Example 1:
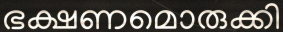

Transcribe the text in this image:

ഭക്ഷണമൊരുക്കി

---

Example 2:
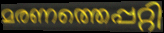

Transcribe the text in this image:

മരണത്തെപ്പറ്റി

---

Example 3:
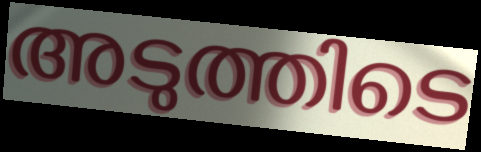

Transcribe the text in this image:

അടുത്തിടെ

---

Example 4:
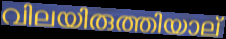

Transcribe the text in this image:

വിലയിരുത്തിയാല്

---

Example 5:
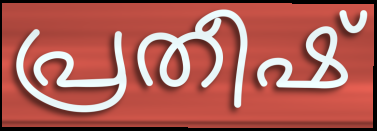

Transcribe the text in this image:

പ്രതീഷ്